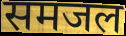
समजल